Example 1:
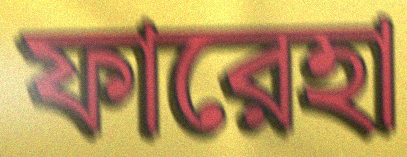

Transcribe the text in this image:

ফারেহা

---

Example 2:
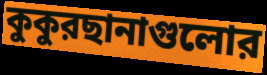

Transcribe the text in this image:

কুকুরছানাগুলোর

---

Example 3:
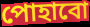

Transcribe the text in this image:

পোহাবো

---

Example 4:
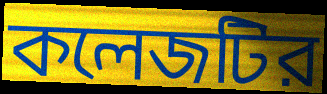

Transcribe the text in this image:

কলেজটির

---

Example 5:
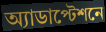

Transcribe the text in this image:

অ্যাডাপ্টেশনে